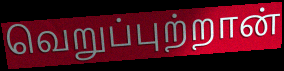
வெறுப்புற்றான்